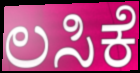
ಲಸಿಕೆ